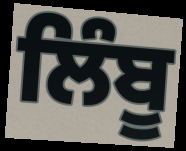
ਲਿੰਬੂ